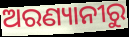
ଅରଣ୍ୟାନୀରୁ